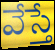
వేస్తే